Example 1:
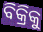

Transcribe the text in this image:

ବିକ୍ରିକୁ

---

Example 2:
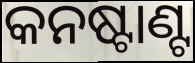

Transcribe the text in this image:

କନଷ୍ଟାଣ୍ଟ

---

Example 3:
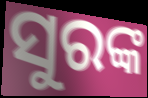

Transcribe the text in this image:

ସୁରଙ୍କ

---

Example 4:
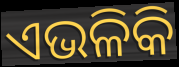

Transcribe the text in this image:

ଏଭଳିକି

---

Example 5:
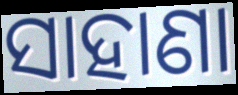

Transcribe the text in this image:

ସାହାଣା